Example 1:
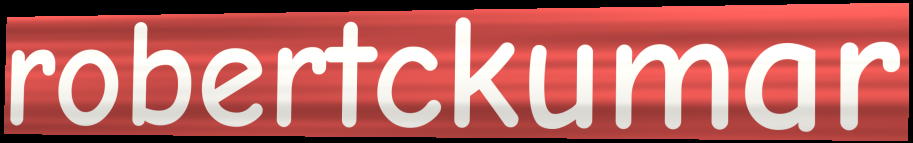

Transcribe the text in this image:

robertckumar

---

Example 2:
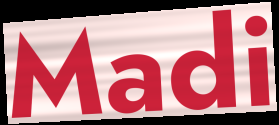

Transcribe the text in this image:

Madi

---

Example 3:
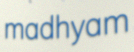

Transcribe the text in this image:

madhyam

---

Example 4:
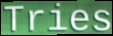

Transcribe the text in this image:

Tries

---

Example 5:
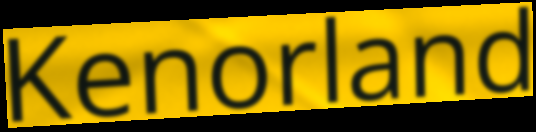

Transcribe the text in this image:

Kenorland